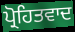
ਪ੍ਰੋਹਿਤਵਾਦ